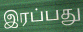
இரப்பது